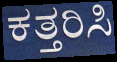
ಕತ್ತರಿಸಿ